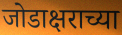
जोडाक्षराच्या